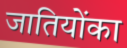
जातियोंका